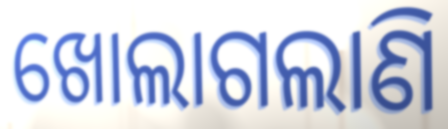
ଖୋଲାଗଲାଣି